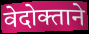
वेदोक्ताने